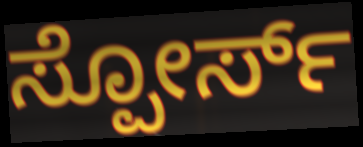
ಸ್ಪೋರ್ಸ್